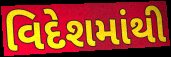
વિદેશમાંથી